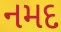
નમદ